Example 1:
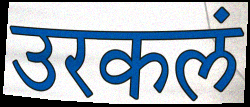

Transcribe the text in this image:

उरकलं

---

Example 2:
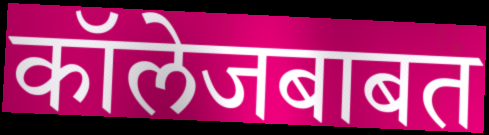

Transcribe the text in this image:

कॉलेजबाबत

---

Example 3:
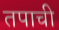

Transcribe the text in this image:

तपाची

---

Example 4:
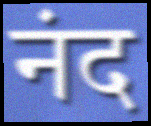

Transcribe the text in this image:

नंद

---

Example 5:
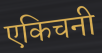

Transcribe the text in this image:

एकिचनी